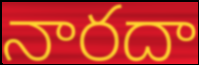
నారదా